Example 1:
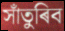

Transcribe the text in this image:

সাঁতুৰিব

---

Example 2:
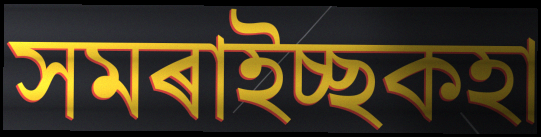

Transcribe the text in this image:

সমৰাইচ্ছকহা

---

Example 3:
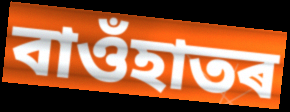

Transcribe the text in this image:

বাওঁহাতৰ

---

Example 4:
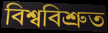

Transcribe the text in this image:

বিশ্ববিশ্ৰুত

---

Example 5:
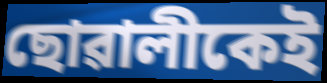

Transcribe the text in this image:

ছোৱালীকেই